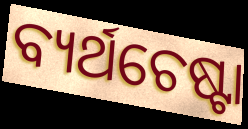
ବ୍ୟର୍ଥଚେଷ୍ଟା